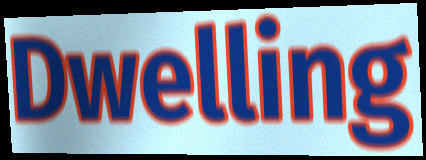
Dwelling